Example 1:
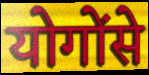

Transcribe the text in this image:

योगोंसे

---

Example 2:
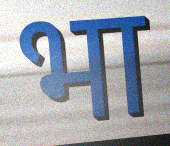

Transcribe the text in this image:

भा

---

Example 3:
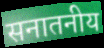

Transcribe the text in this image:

सनातनीय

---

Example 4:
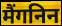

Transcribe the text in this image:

मैंगनिन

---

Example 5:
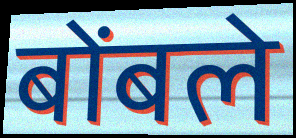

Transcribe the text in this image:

बोंबले